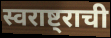
स्वराष्ट्राची